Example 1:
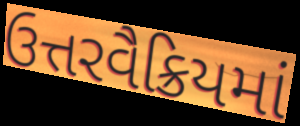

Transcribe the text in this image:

ઉત્તરવૈક્રિયમાં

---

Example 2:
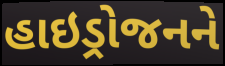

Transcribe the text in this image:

હાઇડ્રોજનને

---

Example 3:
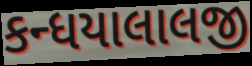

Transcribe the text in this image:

કન્ધયાલાલજી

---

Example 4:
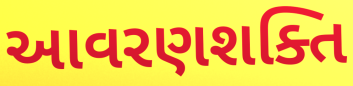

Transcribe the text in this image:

આવરણશક્તિ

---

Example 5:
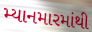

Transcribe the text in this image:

મ્યાનમારમાંથી